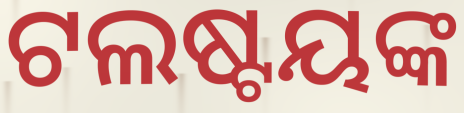
ଟଲଷ୍ଟୟଙ୍କ